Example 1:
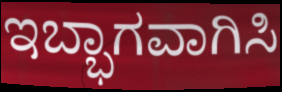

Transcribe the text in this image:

ಇಬ್ಭಾಗವಾಗಿಸಿ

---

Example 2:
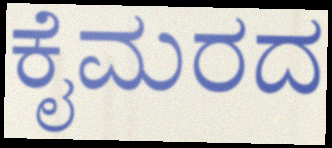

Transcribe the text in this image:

ಕೈಮರದ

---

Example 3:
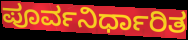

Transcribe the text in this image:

ಪೂರ್ವನಿರ್ಧಾರಿತ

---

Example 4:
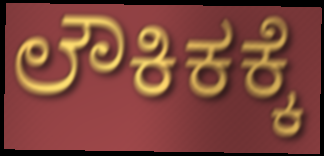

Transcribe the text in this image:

ಲೌಕಿಕಕ್ಕೆ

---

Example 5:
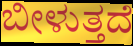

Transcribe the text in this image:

ಬೀಳುತ್ತದೆ